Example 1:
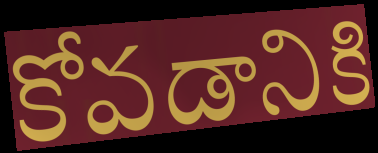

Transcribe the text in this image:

కోవడానికి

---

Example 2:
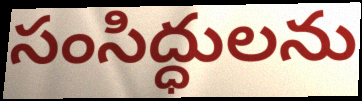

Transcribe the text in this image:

సంసిద్ధులను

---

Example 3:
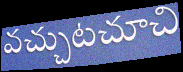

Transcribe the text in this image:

వచ్చుటచూచి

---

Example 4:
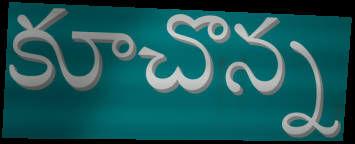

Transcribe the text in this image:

కూచొన్న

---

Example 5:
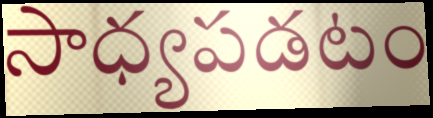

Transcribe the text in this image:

సాధ్యపడటం